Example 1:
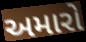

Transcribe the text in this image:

અમારો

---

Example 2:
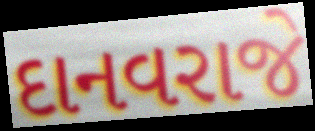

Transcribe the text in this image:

દાનવરાજે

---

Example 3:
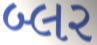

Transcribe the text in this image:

બ્લર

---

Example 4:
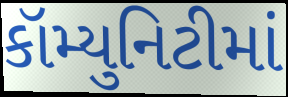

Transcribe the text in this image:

કૉમ્યુનિટીમાં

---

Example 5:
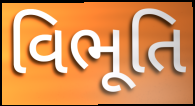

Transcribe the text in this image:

વિભૂતિ